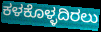
ಕಳಕೊಳ್ಳದಿರಲು